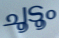
ചൂടൂം